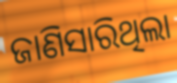
ଜାଣିସାରିଥିଲା